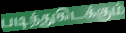
படிந்துகிடக்கும்